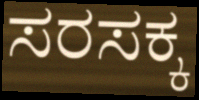
ಸರಸಕ್ಕ